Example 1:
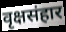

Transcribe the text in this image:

वृक्षसंहार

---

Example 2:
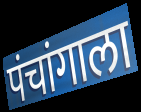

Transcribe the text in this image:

पंचांगाला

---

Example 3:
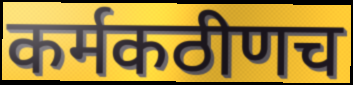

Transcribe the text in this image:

कर्मकठीणच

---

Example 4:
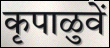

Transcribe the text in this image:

कृपाळुवें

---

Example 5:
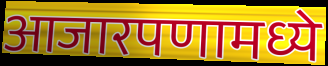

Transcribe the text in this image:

आजारपणामध्ये